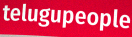
telugupeople